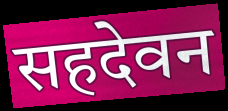
सहदेवन